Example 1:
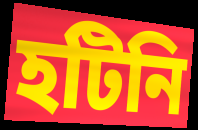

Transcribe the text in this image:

হটিনি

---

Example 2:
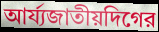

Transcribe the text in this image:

আর্য্যজাতীয়দিগের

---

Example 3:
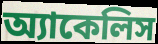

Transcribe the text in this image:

অ্যাকেলিস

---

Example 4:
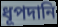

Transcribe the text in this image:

ধূপদানি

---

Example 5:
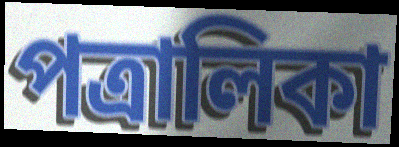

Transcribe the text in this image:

পত্রালিকা